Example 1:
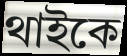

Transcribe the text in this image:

থাইকে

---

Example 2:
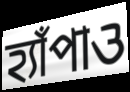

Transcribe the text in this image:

হ্যাঁপাও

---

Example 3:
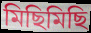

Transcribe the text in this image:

মিছিমিছি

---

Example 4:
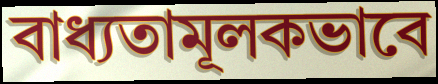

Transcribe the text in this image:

বাধ্যতামূলকভাবে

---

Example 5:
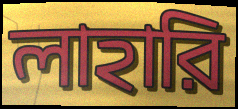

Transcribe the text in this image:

লাহারি